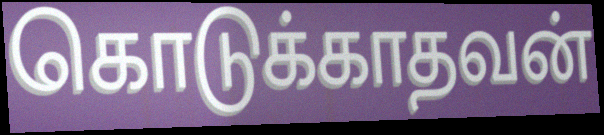
கொடுக்காதவன்